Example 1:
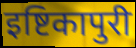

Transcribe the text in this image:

इष्टिकापुरी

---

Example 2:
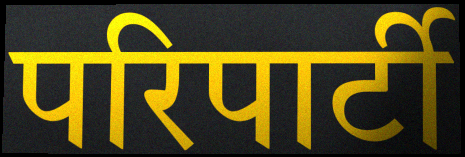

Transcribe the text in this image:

परिपार्टी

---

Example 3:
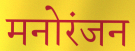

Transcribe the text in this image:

मनोरंजन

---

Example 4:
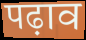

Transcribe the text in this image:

पढ़ाव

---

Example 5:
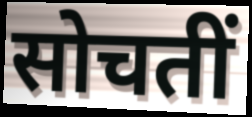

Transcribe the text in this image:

सोचतीं